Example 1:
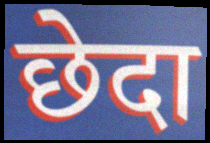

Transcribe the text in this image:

छेदा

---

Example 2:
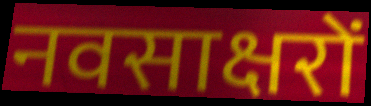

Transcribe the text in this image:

नवसाक्षरों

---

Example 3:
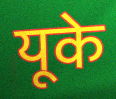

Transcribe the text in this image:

यूके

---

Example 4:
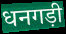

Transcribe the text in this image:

धनगड़ी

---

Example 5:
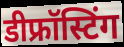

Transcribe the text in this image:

डीफ्रॉस्टिंग